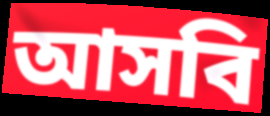
আসবি